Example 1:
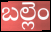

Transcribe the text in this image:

బల్లెం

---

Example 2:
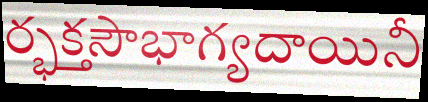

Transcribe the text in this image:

ర్భక్తసౌభాగ్యదాయినీ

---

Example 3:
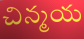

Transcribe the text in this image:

చిన్మయ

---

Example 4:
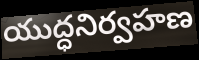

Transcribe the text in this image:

యుద్ధనిర్వహణ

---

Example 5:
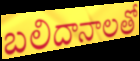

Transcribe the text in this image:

బలిదానాలతో